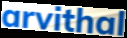
arvithal